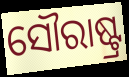
ସୌରାଷ୍ଟ୍ର